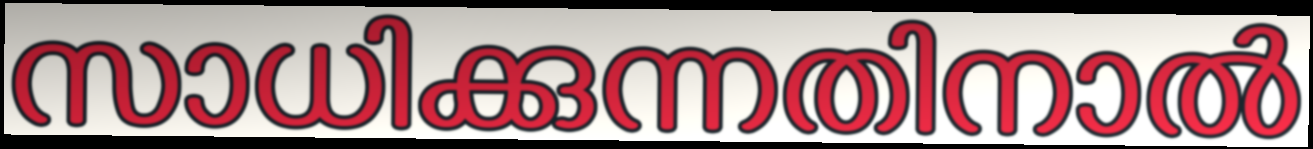
സാധിക്കുന്നതിനാൽ